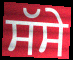
ਸੱਸੇ